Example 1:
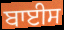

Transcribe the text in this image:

ਬਾਈਸ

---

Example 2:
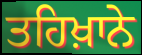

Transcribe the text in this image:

ਤਹਿਖ਼ਾਨੇ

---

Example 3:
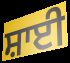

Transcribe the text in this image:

ਸ਼ਾਈ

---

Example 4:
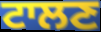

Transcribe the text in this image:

ਟਾਲਣ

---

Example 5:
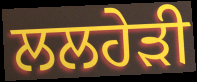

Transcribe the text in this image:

ਲਲਹੇੜੀ